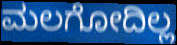
ಮಲಗೋದಿಲ್ಲ